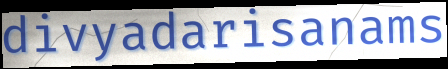
divyadarisanams